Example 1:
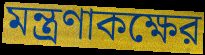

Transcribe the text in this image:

মন্ত্রণাকক্ষের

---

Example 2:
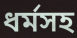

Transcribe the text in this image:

ধর্মসহ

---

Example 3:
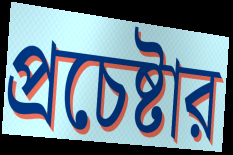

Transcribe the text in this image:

প্রচেষ্টার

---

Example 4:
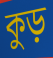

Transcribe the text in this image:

কুড়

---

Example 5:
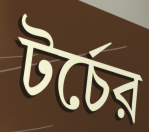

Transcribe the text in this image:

টর্চের